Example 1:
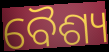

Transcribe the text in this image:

ବୈଶ୍ୟ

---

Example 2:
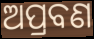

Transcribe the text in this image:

ଅପ୍ରବଣ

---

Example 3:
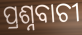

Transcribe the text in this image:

ପ୍ରଶ୍ନବାଚୀ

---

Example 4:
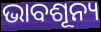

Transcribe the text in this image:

ଭାବଶୂନ୍ୟ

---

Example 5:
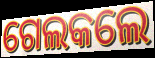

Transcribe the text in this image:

ଗେଲକଲେ